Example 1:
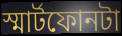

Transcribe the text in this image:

স্মার্টফোনটা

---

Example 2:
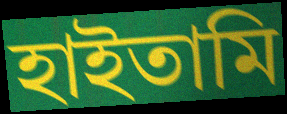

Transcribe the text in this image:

হাইতামি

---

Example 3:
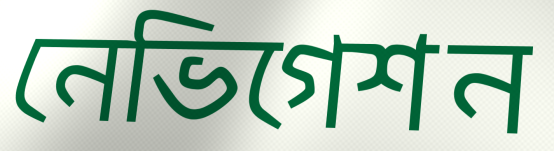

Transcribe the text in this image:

নেভিগেশন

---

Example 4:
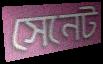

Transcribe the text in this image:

সেনেট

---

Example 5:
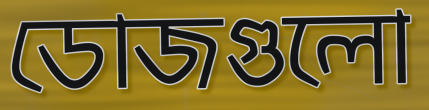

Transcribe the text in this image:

ডোজগুলো